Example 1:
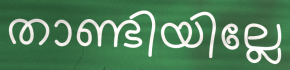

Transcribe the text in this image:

താണ്ടിയില്ലേ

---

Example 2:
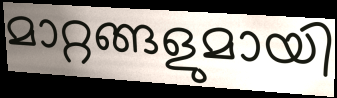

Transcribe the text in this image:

മാറ്റങ്ങളുമായി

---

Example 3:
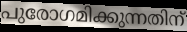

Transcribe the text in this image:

പുരോഗമിക്കുന്നതിന്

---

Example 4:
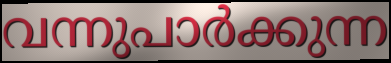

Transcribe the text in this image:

വന്നുപാർക്കുന്ന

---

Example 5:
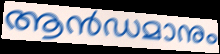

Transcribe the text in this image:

ആൻഡമാനും